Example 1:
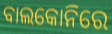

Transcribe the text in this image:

ବାଲକୋନିରେ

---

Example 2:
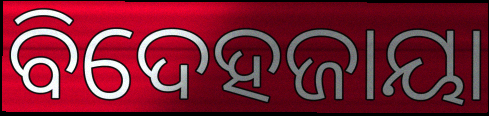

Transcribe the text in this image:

ବିଦେହଜାୟା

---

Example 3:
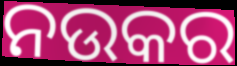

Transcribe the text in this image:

ନଉକର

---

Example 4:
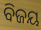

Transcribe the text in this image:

ବିଜୟ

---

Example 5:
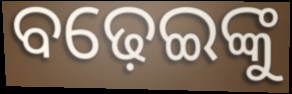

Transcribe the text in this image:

ବଢ଼େଇଙ୍କୁ